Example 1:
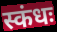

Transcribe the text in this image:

स्कंधः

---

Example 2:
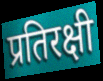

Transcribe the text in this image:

प्रतिरक्षी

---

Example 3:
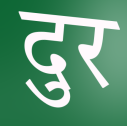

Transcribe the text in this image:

दुर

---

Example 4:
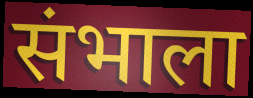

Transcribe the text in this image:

संभाला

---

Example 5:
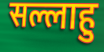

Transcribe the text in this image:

सल्लाहु